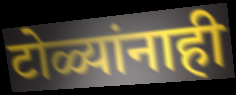
टोळ्यांनाही